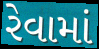
રેવામાં